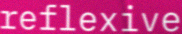
reflexive